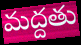
మద్దతు